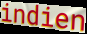
indien